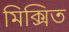
মিক্সিত